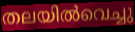
തലയിൽവെച്ചു